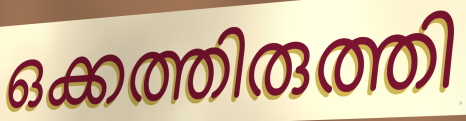
ഒക്കത്തിരുത്തി